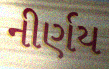
નીર્ણય